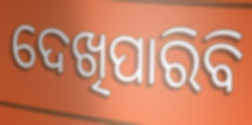
ଦେଖିପାରିବି